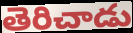
తెరిచాడు